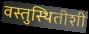
वस्तुस्थितीशी